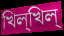
খিল্খিল্